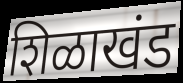
शिळाखंड